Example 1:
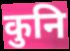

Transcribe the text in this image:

कुनि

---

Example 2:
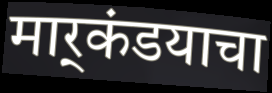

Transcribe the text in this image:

मार्कंडयाचा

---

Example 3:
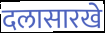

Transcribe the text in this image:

दलासारखे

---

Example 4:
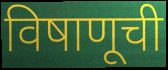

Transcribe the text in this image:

विषाणूची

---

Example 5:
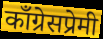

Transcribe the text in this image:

काँग्रेसप्रेमी